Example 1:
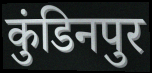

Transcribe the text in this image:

कुंडिनपुर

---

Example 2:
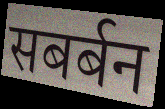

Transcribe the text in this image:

सबर्बन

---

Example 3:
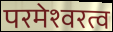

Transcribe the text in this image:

परमेश्वरत्व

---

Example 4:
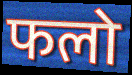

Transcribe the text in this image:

फलो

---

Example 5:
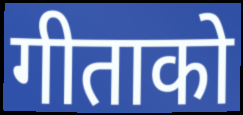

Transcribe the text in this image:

गीताको